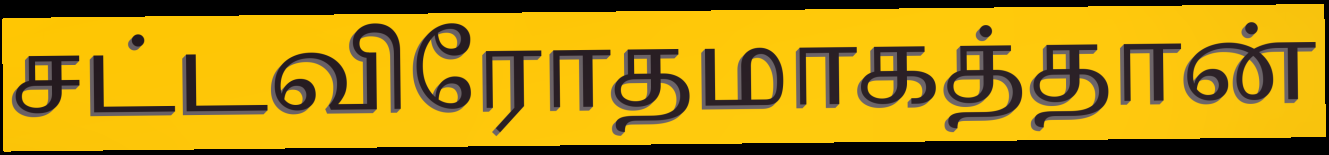
சட்டவிரோதமாகத்தான்